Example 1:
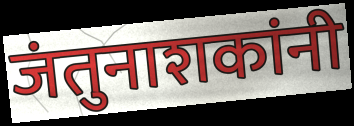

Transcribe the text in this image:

जंतुनाशकांनी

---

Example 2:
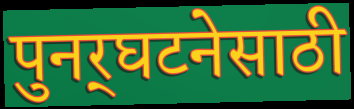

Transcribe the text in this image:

पुनर्घटनेसाठी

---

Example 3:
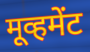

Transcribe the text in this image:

मूव्हमेंट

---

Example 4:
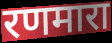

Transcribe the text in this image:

रणमारा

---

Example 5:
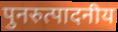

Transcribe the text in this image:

पुनरुत्पादनीय